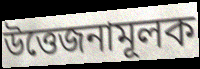
উত্তেজনামূলক